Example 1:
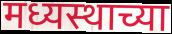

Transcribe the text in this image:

मध्यस्थाच्या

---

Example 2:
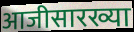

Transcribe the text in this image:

आजीसारख्या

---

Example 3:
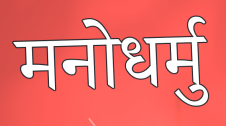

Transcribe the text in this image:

मनोधर्मु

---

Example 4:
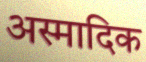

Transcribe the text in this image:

अस्मादिक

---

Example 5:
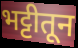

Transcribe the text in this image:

भट्टीतून